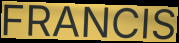
FRANCIS